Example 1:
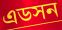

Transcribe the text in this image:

এডসন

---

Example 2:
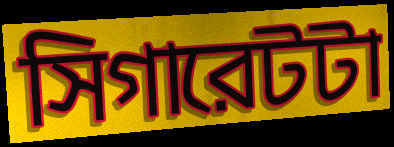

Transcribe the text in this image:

সিগারেটটা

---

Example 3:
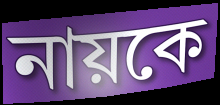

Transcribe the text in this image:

নায়কে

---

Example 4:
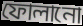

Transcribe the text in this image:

ফোলানো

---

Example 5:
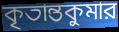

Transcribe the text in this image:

কৃতান্তকুমার